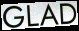
GLAD